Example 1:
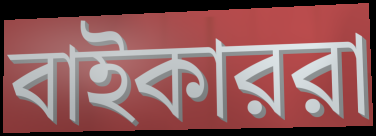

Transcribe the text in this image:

বাইকাররা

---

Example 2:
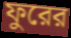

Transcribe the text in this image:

ফুরের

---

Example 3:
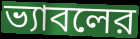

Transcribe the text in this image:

ভ্যাবলের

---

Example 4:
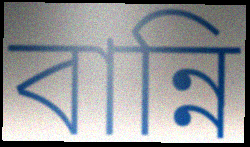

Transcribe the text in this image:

বান্নি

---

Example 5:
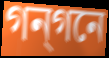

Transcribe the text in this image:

গন্গনে